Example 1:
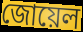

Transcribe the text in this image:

জোয়েল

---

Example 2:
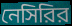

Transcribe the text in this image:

নেসিরির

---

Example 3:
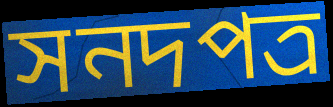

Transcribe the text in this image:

সনদপত্র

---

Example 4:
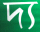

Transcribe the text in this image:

দ্য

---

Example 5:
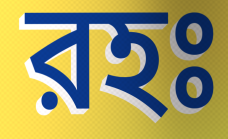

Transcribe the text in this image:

রহঃ